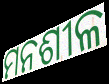
ମନଶୀଳ